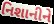
નિશાનીને